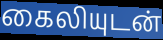
கைலியுடன்